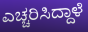
ಎಚ್ಚರಿಸಿದ್ದಾಳೆ